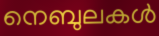
നെബുലകൾ